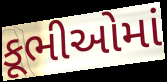
કૂભીઓમાં